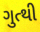
ગુત્થી